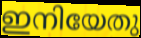
ഇനിയേതു